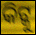
କିଟ୍କୁ